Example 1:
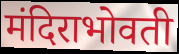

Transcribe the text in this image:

मंदिराभोवती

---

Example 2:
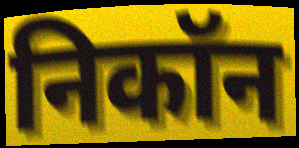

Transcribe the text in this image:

निकॉन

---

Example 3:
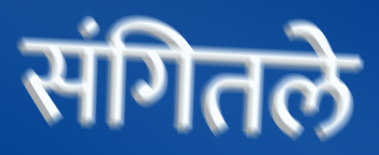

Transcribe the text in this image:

संगितले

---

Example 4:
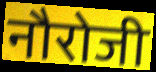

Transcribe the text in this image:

नौरोजी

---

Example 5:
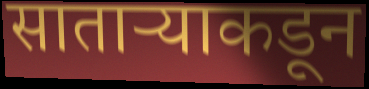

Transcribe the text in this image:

साताऱ्याकडून